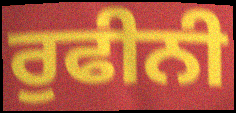
ਰੁਫੀਨੀ